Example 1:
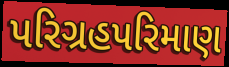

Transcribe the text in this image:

પરિગ્રહપરિમાણ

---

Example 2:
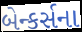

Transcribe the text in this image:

બેન્કર્સના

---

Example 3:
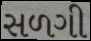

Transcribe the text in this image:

સળગી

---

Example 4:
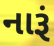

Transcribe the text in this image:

નારૂં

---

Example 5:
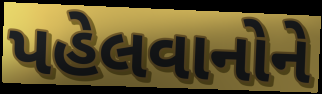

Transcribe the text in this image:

પહેલવાનોને